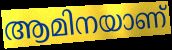
ആമിനയാണ്